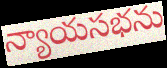
న్యాయసభను